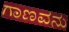
ಗಾಣವನು